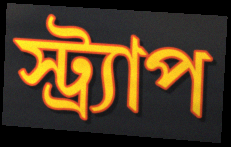
স্ট্র্যাপ